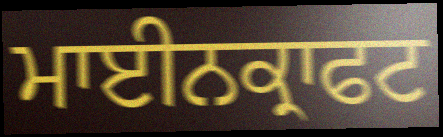
ਮਾਈਨਕ੍ਰਾਫਟ